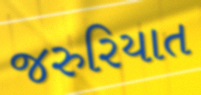
જરુરિયાત